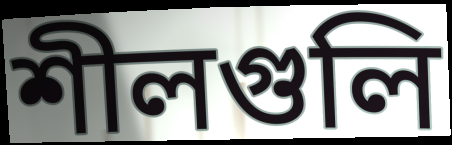
শীলগুলি